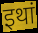
इथां